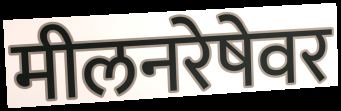
मीलनरेषेवर